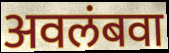
अवलंबवा